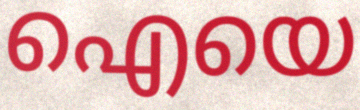
ഐയെ